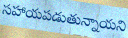
సహాయపడుతున్నాయని